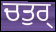
ਚਤੁਰ੍